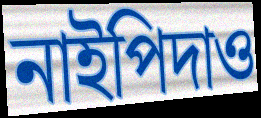
নাইপিদাও